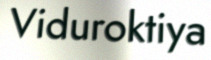
Viduroktiya